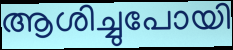
ആശിച്ചുപോയി